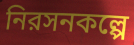
নিরসনকল্পে